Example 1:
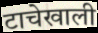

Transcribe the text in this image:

टाचेखाली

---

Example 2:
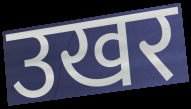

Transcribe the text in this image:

उखर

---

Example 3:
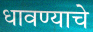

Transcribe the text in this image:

धावण्याचे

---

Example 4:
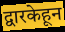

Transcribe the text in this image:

द्वारकेहून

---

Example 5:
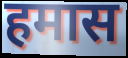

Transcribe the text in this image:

हमास